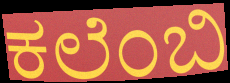
ಕಲೆಂಬಿ